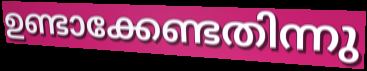
ഉണ്ടാക്കേണ്ടതിന്നു